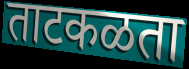
ताटकळता